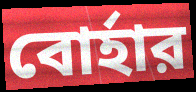
বোর্হার